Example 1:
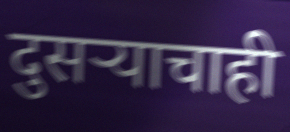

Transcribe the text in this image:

दुसऱ्याचाही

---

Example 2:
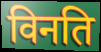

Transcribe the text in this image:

विनति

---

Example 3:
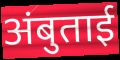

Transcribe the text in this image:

अंबुताई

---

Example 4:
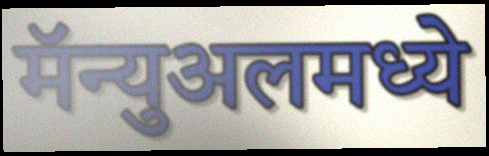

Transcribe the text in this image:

मॅन्युअलमध्ये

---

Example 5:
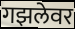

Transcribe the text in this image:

गझलेवर